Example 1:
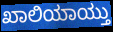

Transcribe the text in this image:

ಖಾಲಿಯಾಯ್ತು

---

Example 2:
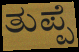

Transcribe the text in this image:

ತುಪ್ಪೆ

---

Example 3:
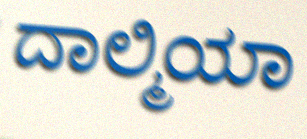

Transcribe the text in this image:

ದಾಲ್ಮಿಯಾ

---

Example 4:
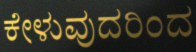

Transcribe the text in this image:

ಕೇಳುವುದರಿಂದ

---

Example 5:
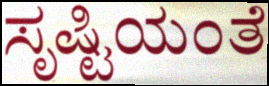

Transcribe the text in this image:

ಸೃಷ್ಟಿಯಂತೆ